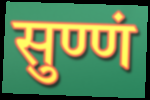
सुण्णं